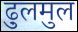
ढ़ुलमुल